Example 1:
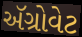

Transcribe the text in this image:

ઍગ્રોવેટ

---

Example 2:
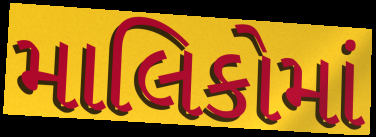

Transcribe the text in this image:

માલિકોમાં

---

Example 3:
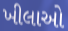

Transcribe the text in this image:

ખીલાઓ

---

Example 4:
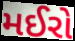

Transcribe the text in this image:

મઈરો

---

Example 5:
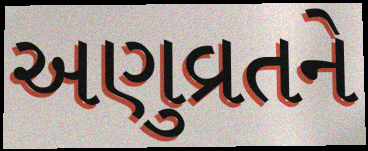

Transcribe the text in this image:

અણુવ્રતને